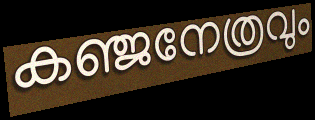
കഞ്ജനേത്രവും